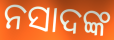
ନସାଦଙ୍କ